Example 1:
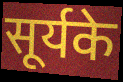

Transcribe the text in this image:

सूर्यके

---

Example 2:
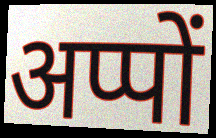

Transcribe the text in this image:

अप्पों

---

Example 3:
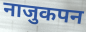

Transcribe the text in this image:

नाजुकपन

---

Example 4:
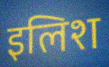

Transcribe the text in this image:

इलिश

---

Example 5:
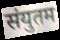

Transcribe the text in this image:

संयुतम